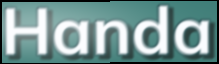
Handa